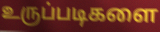
உருப்படிகளை